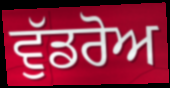
ਵੁੱਡਰੋਅ